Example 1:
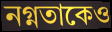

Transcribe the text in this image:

নগ্নতাকেও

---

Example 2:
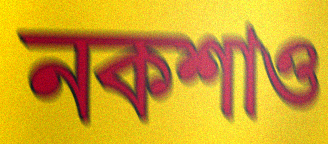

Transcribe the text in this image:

নকশাও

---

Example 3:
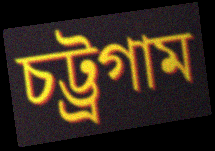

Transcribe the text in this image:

চট্ট্রগাম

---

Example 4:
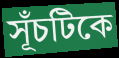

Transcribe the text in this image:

সূঁচটিকে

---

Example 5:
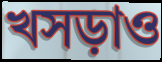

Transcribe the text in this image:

খসড়াও